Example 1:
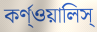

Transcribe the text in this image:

কর্ণ্ওয়ালিস্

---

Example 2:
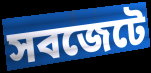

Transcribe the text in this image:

সবজেটে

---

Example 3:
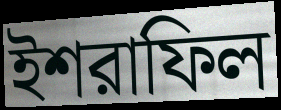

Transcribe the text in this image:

ইশরাফিল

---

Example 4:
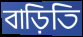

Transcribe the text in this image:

বাড়িতি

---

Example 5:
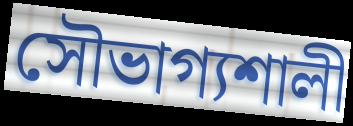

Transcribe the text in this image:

সৌভাগ্যশালী